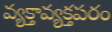
వ్యక్తావ్యక్తపరం